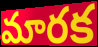
మారక